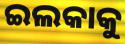
ଇଲକାକୁ